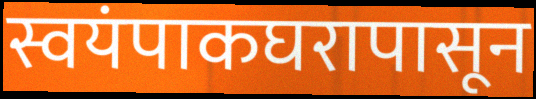
स्वयंपाकघरापासून